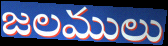
జలములు